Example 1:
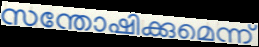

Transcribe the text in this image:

സന്തോഷിക്കുമെന്ന്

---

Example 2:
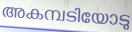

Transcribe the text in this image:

അകമ്പടിയോടു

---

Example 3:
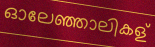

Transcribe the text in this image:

ഓലേഞ്ഞാലികള്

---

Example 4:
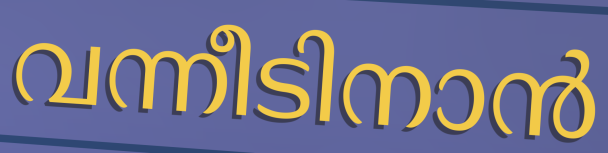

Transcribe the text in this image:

വന്നീടിനാൻ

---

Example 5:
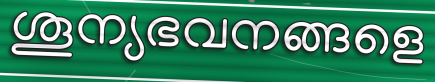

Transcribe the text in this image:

ശൂന്യഭവനങ്ങളെ